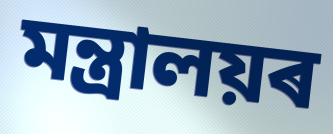
মন্ত্ৰালয়ৰ